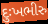
દુઃખભીરુ